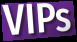
VIPs